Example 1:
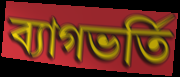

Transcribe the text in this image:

ব্যাগভর্তি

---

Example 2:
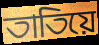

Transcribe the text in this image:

তাতিয়ে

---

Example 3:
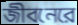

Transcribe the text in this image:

জীবনেরে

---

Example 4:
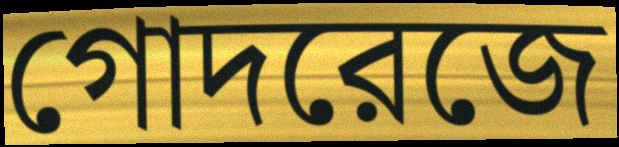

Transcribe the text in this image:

গোদরেজে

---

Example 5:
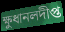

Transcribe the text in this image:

ক্ষুধানলদীপ্ত